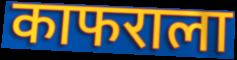
काफराला